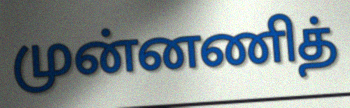
முன்னணித்